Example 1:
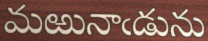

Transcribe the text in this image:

మఱునాఁడును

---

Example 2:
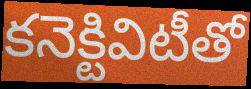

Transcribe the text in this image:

కనెక్టివిటీతో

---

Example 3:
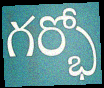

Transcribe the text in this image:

గర్భో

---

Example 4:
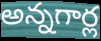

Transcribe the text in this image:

అన్నగార్ల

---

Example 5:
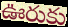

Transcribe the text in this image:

ఊరుకు